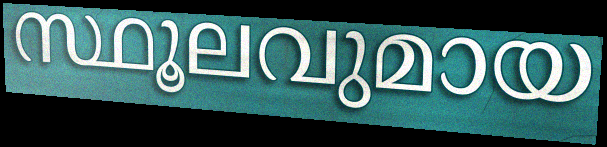
സ്ഥൂലവുമായ